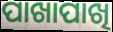
ପାଖାପାଖି